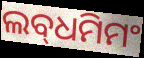
ଲବ୍‌ଧମିମଂ